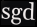
sgd